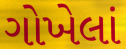
ગોખેલાં